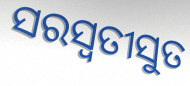
ସରସ୍ୱତୀସୁତ